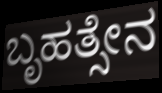
ಬೃಹತ್ಸೇನ